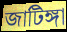
জাটিঙ্গা